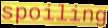
spoiling